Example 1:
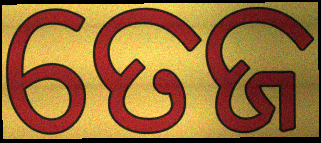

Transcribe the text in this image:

ତେଜ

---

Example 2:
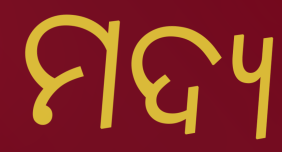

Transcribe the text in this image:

ମଦ୍ଯ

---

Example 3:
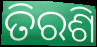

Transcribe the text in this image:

ତିରଶି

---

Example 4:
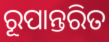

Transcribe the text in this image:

ରୂପାନ୍ତରିତ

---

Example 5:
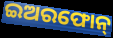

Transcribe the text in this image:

ଇଅରଫୋନ୍